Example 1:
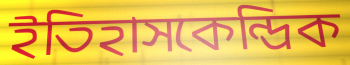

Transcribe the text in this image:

ইতিহাসকেন্দ্রিক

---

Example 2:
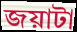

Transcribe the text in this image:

জয়াটা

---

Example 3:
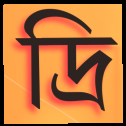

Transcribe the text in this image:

দ্রি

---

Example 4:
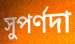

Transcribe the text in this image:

সুপর্ণদা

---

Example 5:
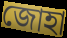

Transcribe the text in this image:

জোহা